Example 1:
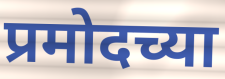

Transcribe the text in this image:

प्रमोदच्या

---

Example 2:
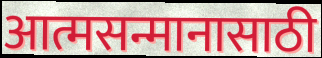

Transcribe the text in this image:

आत्मसन्मानासाठी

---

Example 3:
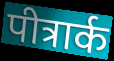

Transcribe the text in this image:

पीत्रार्क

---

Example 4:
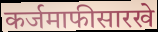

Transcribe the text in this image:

कर्जमाफीसारखे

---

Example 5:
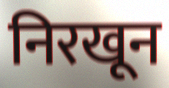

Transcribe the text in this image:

निरखून